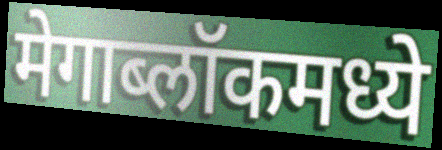
मेगाब्लॉकमध्ये